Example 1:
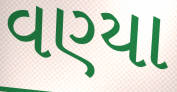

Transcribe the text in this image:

વણ્યા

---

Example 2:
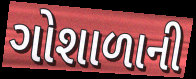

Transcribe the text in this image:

ગોશાળાની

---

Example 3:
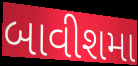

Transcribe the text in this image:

બાવીશમા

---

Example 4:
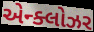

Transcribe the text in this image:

એન્ક્લોઝર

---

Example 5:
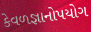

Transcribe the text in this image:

કેવળજ્ઞાનોપયોગ